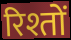
रिश्तों